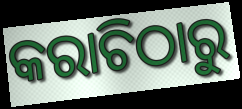
କରାଚିଠାରୁ